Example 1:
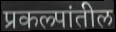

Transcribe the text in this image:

प्रकल्पांतील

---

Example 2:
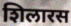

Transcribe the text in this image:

शिलारस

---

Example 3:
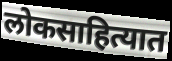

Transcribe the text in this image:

लोकसाहित्यात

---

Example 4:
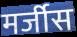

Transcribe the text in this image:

मर्जीस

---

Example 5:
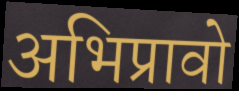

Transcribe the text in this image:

अभिप्रावो